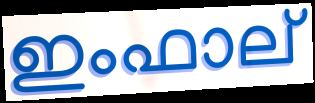
ഇംഫാല്